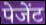
पेजेंट